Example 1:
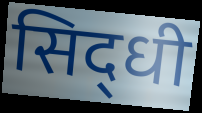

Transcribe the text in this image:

सिद्धी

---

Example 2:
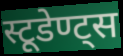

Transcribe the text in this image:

स्टूडेण्ट्स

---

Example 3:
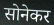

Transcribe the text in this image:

सोनेकर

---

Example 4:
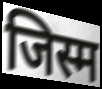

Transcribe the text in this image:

जिस्म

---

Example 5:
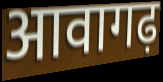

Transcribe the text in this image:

आवागढ़